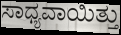
ಸಾಧ್ಯವಾಯಿತ್ತು